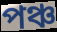
পঞ্চ